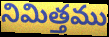
నిమిత్తము